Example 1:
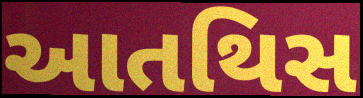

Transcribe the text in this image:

આતથિસ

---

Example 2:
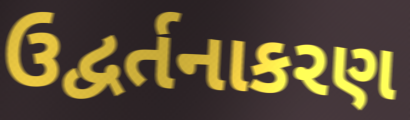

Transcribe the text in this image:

ઉદ્વર્તનાકરણ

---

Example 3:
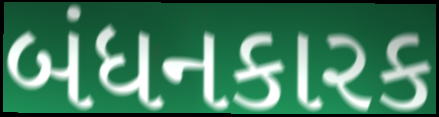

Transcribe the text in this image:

બંધનકારક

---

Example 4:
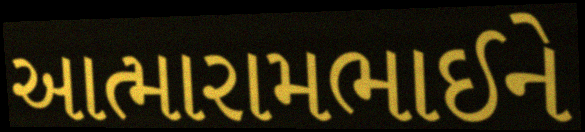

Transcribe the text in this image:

આત્મારામભાઈને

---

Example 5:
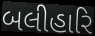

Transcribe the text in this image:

બલીહારિ